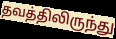
தவத்திலிருந்து